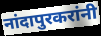
नांदापुरकरांनी